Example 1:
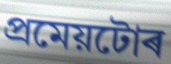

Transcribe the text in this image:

প্ৰমেয়টোৰ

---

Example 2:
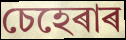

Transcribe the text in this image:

চেহেৰাৰ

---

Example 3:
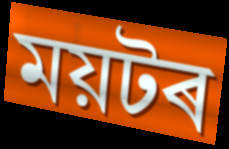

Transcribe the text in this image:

ময়টৰ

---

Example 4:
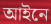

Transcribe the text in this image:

আইনে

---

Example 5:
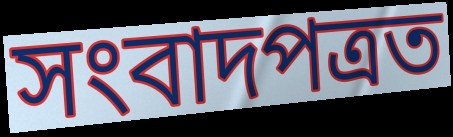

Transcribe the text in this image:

সংবাদপত্ৰত